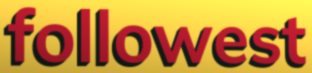
followest